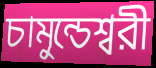
চামুন্ডেশ্বরী